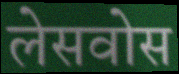
लेसवोस